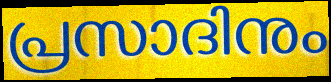
പ്രസാദിനും